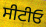
ਸੀਟੀਓ